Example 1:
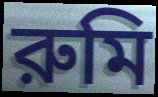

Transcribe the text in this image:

রুমি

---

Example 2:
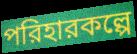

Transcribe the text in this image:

পরিহারকল্পে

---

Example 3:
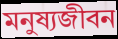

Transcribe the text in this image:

মনুষ্যজীবন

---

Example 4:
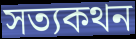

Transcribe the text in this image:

সত্যকথন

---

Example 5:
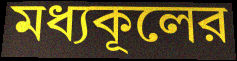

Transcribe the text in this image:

মধ্যকূলের